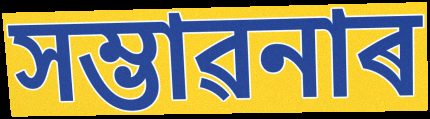
সম্ভাৱনাৰ